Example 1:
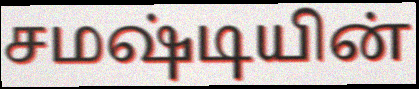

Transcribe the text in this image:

சமஷ்டியின்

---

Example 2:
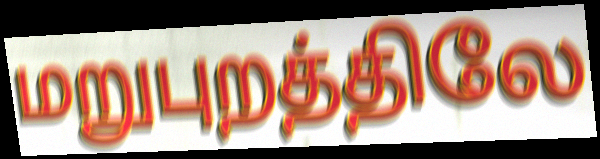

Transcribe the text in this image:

மறுபுறத்திலே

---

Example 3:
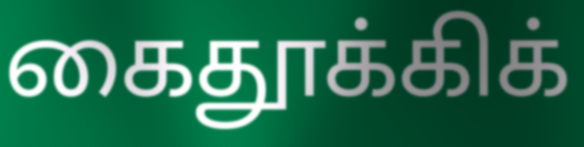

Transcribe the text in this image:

கைதூக்கிக்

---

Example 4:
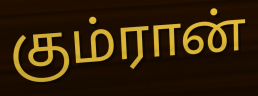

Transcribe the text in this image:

கும்ரான்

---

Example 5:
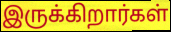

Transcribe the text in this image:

இருக்கிறார்கள்